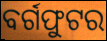
ବର୍ଗଫୁଟର